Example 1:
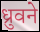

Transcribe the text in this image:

ध्रुवने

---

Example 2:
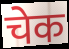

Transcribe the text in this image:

चेक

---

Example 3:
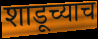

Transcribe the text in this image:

शाडूच्याच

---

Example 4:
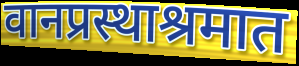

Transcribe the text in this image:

वानप्रस्थाश्रमात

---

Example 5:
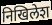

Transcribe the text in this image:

निखिलेश